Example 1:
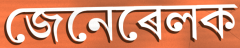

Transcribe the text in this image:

জেনেৰেলক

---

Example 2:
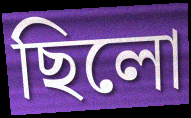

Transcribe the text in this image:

ছিলো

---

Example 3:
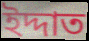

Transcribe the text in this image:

ইদ্দাত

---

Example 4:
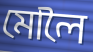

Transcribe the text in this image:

মোলৈ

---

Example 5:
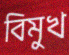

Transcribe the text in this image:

বিমুখ